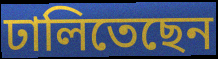
ঢালিতেছেন